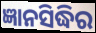
ଜ୍ଞାନସିଦ୍ଧିର